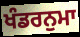
ਖੰਡਰਨੁਮਾ